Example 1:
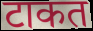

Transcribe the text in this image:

टाकत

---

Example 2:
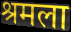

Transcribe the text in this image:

श्रमला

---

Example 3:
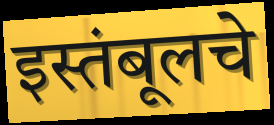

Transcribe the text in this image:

इस्तंबूलचे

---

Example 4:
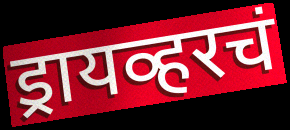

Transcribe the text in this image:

ड्रायव्हरचं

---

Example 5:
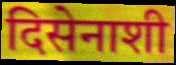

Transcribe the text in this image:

दिसेनाशी